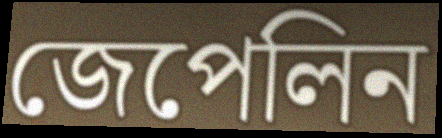
জেপেলিন